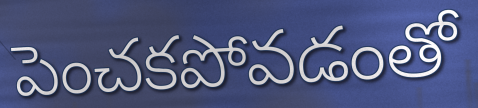
పెంచకపోవడంతో